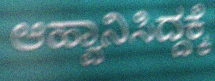
ಆಹ್ವಾನಿಸಿದ್ದಕ್ಕೆ